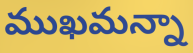
ముఖమన్నా